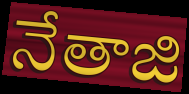
నేతాజి